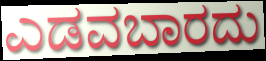
ಎಡವಬಾರದು